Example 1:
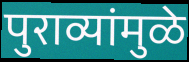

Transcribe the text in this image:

पुराव्यांमुळे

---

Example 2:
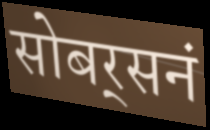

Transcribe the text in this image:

सोबर्सनं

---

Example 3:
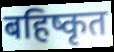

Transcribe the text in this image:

बहिष्कृत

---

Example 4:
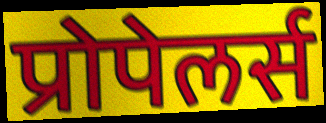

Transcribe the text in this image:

प्रोपेलर्स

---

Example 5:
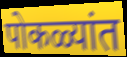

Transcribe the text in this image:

पोकळ्यांत